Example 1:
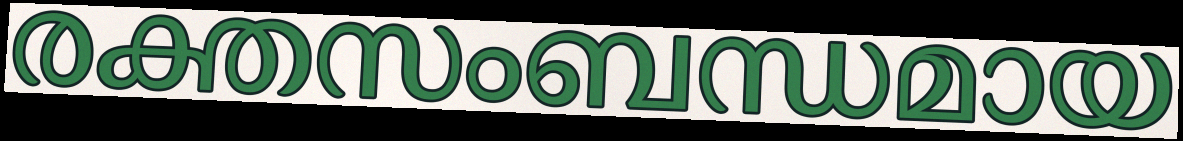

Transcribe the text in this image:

രക്തസംബന്ധമായ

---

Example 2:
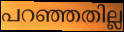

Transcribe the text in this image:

പറഞ്ഞതില്ല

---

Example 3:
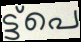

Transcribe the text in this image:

ട്ട്പെ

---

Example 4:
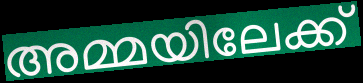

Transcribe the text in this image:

അമ്മയിലേക്ക്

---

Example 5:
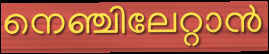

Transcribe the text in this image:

നെഞ്ചിലേറ്റാൻ